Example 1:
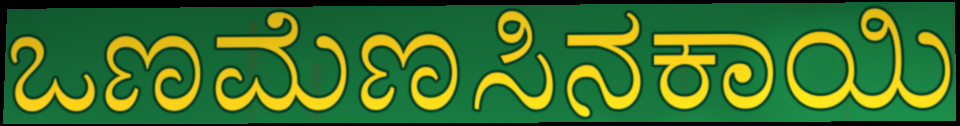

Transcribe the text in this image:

ಒಣಮೆಣಸಿನಕಾಯಿ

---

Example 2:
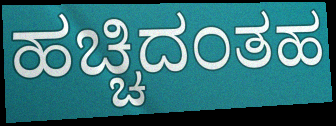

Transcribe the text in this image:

ಹಚ್ಚಿದಂತಹ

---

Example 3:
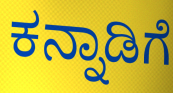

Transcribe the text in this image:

ಕನ್ನಾಡಿಗೆ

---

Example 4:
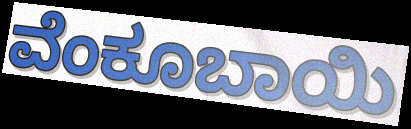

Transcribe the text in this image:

ವೆಂಕೂಬಾಯಿ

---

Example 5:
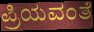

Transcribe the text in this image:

ಪ್ರಿಯವಂತೆ